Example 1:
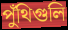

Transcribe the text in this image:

পুঁথিগুলি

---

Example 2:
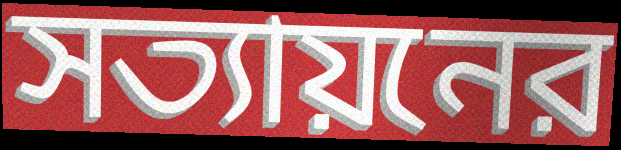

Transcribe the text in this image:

সত্যায়নের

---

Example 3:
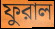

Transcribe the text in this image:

ফুরাল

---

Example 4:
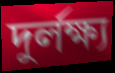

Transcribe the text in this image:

দুর্লক্ষ্য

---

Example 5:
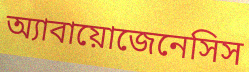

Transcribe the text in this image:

অ্যাবায়োজেনেসিস